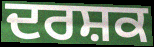
ਦਰਸ਼ਕ